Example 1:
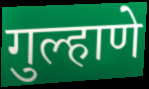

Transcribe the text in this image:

गुल्हाणे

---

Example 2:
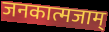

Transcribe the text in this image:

जनकात्मजाम्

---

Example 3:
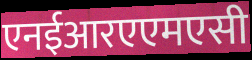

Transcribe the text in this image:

एनईआरएएमएसी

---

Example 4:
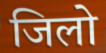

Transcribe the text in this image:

जिलो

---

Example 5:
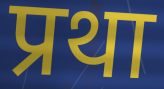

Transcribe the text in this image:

प्रथा